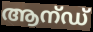
ആന്ഡ്